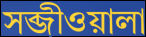
সব্জীওয়ালা